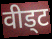
वीड्ट